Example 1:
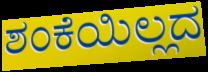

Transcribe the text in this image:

ಶಂಕೆಯಿಲ್ಲದ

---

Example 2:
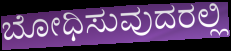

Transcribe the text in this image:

ಬೋಧಿಸುವುದರಲ್ಲಿ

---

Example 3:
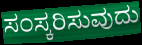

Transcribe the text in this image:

ಸಂಸ್ಕರಿಸುವುದು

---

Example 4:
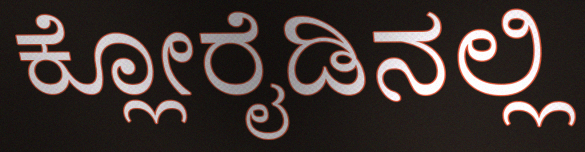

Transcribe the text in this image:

ಕ್ಲೋರೈಡಿನಲ್ಲಿ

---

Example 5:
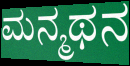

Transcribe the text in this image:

ಮನ್ಮಥನ